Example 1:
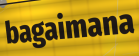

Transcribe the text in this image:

bagaimana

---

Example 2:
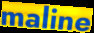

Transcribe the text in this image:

maline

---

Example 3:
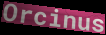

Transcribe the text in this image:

Orcinus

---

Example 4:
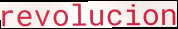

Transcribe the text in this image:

revolucion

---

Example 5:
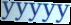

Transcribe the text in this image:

yyyyy